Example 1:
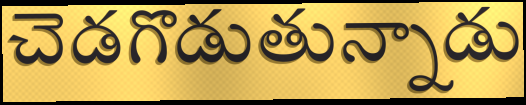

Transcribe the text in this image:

చెడగొడుతున్నాడు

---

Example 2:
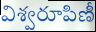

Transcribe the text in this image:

విశ్వరూపిణీ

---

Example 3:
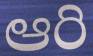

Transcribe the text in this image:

ఆరి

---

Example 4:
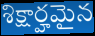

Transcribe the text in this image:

శిక్షార్హమైన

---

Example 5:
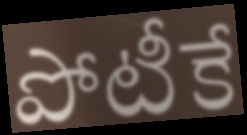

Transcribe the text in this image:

పోటీకే